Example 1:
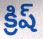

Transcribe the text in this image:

క్రిష్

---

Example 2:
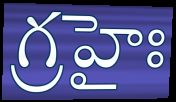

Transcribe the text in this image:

గ్రహైః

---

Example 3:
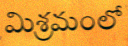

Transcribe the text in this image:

మిశ్రమంలో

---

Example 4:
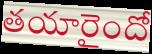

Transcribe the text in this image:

తయారైందో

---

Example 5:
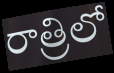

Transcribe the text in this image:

రాత్రిలో